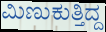
ಮಿಣುಕುತ್ತಿದ್ದ